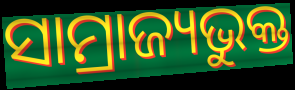
ସାମ୍ରାଜ୍ୟଭୁକ୍ତ